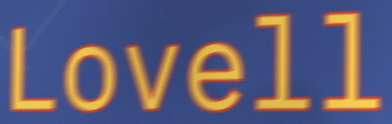
Lovell